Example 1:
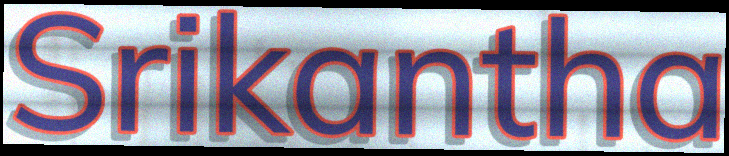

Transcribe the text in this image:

Srikantha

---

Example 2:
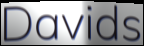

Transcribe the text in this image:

Davids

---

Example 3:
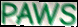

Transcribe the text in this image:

PAWS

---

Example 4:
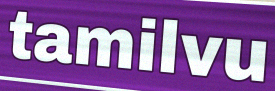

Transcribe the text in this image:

tamilvu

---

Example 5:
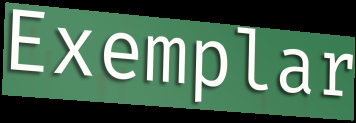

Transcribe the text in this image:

Exemplar